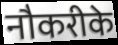
नौकरीके